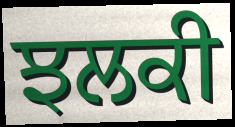
ਝਲਕੀ